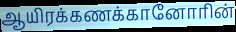
ஆயிரக்கணக்கானோரின்